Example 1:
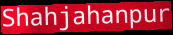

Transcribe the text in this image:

Shahjahanpur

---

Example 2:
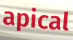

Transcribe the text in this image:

apical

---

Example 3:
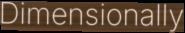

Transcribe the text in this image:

Dimensionally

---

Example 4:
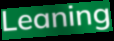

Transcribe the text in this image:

Leaning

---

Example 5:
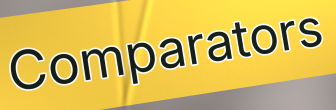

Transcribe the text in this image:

Comparators